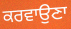
ਕਰਵਾਉਣਾ